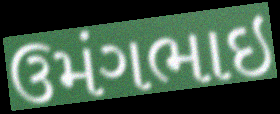
ઉમંગભાઇ